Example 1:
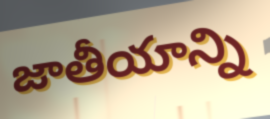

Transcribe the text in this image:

జాతీయాన్ని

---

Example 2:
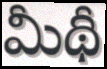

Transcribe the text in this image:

మీథీ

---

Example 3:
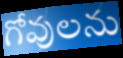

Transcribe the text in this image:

గోవులను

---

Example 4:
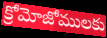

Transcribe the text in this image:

క్రోమోజోములకు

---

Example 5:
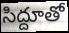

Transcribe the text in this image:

సిద్దూతో